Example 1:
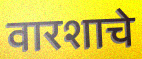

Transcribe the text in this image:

वारशाचे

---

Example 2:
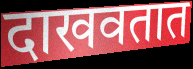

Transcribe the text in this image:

दाखवतात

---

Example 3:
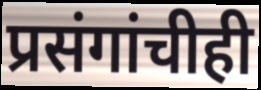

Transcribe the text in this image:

प्रसंगांचीही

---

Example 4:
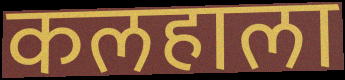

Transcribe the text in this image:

कलहाला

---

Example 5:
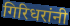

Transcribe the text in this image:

गिरिधरांनी